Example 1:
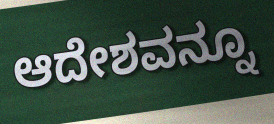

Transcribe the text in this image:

ಆದೇಶವನ್ನೂ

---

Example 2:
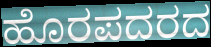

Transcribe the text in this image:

ಹೊರಪದರದ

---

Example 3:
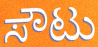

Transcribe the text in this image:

ಸೌಟು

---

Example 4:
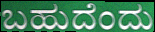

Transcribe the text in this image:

ಬಹುದೆಂದು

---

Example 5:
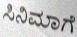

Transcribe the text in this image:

ಸಿನಿಮಾಗೆ